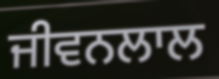
ਜੀਵਨਲਾਲ